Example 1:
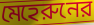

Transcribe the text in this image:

মেহেরুনের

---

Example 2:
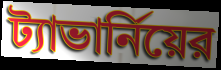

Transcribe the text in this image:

ট্যাভার্নিয়ের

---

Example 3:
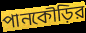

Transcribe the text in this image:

পানকৌড়ির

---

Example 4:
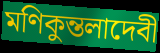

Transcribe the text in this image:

মণিকুন্তলাদেবী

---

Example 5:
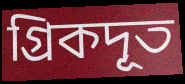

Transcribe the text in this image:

গ্রিকদূত